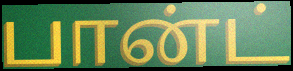
பான்ட்